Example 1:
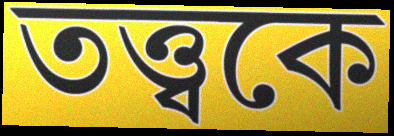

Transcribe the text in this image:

তত্ত্বকে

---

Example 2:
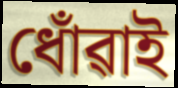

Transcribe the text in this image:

ধোঁৱাই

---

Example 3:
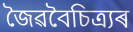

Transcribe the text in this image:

জৈৱবৈচিত্ৰ্যৰ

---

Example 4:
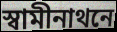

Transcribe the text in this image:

স্বামীনাথনে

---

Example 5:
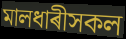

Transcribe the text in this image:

মালধাৰীসকল